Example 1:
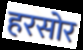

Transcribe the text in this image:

हरसोर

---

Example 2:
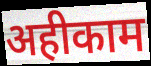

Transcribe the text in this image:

अहीकाम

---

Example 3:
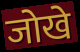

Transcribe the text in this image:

जोखे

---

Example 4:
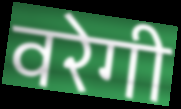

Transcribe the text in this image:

वरेगी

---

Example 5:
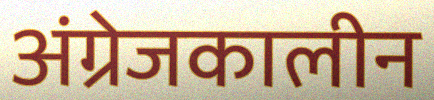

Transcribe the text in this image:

अंग्रेजकालीन